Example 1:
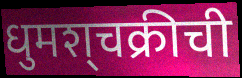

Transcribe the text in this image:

धुमश्चक्रीची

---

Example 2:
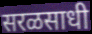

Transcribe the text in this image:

सरळसाधी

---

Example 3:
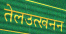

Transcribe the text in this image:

तेलउत्खनन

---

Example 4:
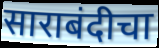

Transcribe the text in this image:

साराबंदीचा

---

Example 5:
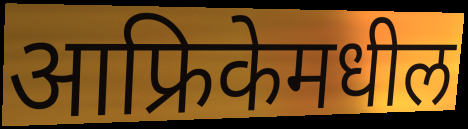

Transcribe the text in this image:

आफ्रिकेमधील